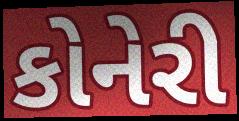
કોનેરી